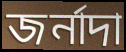
জর্নাদা